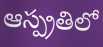
ఆస్ప్రతిలో